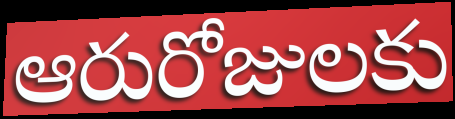
ఆరురోజులకు